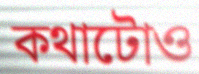
কথাটোও